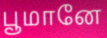
பூமானே